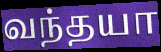
வந்தயா